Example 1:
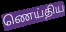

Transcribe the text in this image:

ணெய்திய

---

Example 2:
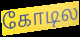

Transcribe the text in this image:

கோடில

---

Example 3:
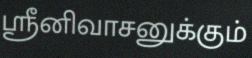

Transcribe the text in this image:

ஸ்ரீனிவாசனுக்கும்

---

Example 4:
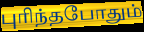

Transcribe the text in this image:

புரிந்தபோதும்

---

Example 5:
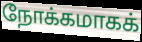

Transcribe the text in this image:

நோக்கமாகக்